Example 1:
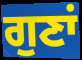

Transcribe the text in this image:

ਗੁਣਾਂ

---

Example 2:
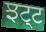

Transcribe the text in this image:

ਝਟ੍ਟ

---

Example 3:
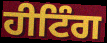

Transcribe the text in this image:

ਹੀਟਿੰਗ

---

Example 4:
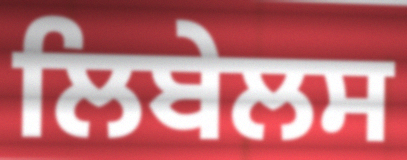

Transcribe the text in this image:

ਲਿਬੇਲਸ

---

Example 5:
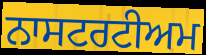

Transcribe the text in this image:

ਨਾਸਟਰਟੀਅਮ